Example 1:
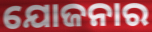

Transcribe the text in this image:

ଯୋଜନାର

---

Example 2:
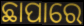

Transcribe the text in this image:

ଛାପାରେ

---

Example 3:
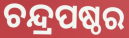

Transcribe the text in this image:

ଚନ୍ଦ୍ରପଷ୍ଠର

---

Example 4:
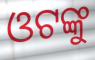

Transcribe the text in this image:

ଓଟଙ୍କୁ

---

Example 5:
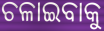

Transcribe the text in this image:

ଚଳାଇବାକୁ